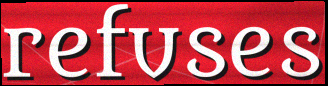
refuses